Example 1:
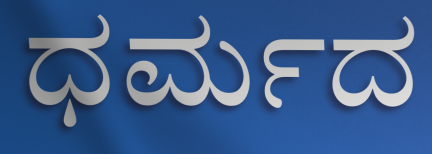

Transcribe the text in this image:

ಧರ್ಮದ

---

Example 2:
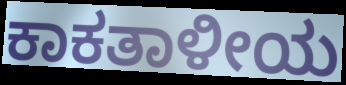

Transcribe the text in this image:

ಕಾಕತಾಳೀಯ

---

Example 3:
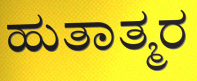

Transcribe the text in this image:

ಹುತಾತ್ಮರ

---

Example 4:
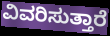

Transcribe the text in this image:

ವಿವರಿಸುತ್ತಾರೆ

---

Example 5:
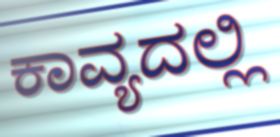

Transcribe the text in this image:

ಕಾವ್ಯದಲ್ಲಿ